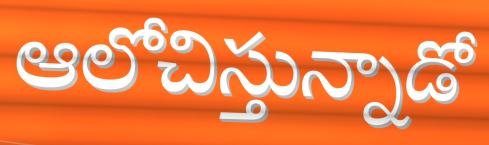
ఆలోచిస్తున్నాడో